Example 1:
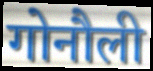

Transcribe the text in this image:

गोनौली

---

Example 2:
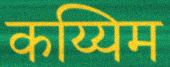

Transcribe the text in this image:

कय्यिम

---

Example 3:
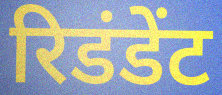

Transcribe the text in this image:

रिडंडेंट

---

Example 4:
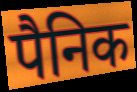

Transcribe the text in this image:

पैनिक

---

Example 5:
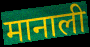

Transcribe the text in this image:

मानाली